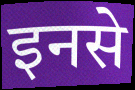
इनसे